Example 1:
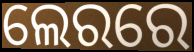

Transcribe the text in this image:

ଲେରରେ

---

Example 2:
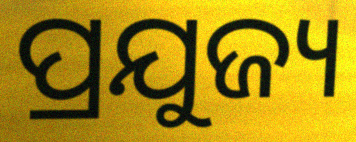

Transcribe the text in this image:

ପ୍ରଯୁଜ୍ୟ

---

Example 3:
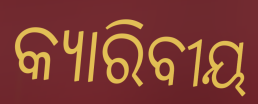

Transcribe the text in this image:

କ୍ୟାରିବୀୟ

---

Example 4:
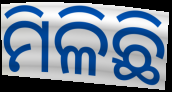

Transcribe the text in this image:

ମିଳିଛି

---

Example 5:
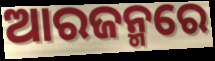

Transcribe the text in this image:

ଆରଜନ୍ମରେ